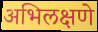
अभिलक्षणे